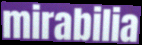
mirabilia